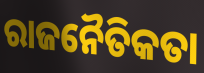
ରାଜନୈତିକତା